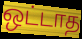
ஒட்டாத